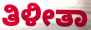
ತಿಳೀತಾ